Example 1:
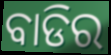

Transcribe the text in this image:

ବାଡିର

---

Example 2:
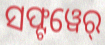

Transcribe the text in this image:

ସଫ୍ଟୱେର୍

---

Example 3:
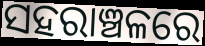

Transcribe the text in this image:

ସହରାଞ୍ଚଳରେ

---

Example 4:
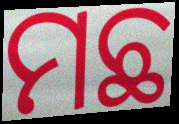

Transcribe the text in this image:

ମଛ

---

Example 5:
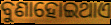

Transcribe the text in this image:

ବୁଣାହୋଇଥାଏ